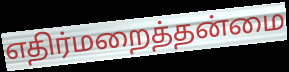
எதிர்மறைத்தன்மை